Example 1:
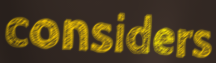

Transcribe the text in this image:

considers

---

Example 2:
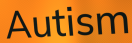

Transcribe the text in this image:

Autism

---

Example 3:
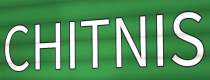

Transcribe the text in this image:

CHITNIS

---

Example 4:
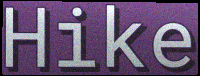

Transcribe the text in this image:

Hike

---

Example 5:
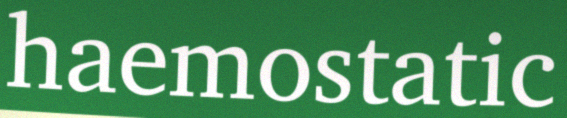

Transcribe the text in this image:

haemostatic